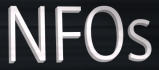
NFOs